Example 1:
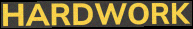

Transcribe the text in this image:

HARDWORK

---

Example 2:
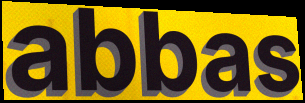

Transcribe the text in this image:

abbas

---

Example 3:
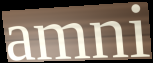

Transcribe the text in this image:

amni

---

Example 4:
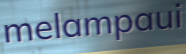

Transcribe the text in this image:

melampaui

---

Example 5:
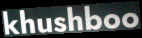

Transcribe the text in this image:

khushboo